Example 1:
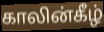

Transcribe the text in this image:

காலின்கீழ்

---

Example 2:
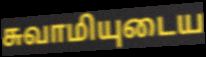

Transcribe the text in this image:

சுவாமியுடைய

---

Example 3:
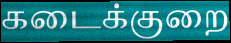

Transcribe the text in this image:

கடைக்குறை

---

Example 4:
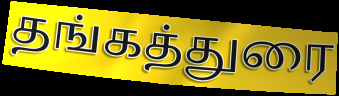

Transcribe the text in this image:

தங்கத்துரை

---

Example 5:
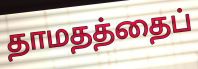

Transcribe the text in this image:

தாமதத்தைப்